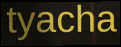
tyacha